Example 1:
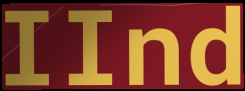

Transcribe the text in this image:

IInd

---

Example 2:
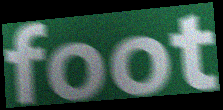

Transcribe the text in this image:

foot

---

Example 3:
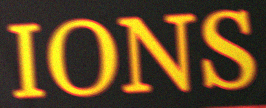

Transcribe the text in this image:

IONS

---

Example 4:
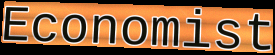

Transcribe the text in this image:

Economist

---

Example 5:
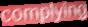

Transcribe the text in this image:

complying